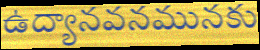
ఉద్యానవనమునకు